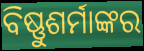
ବିଷ୍ଣୁଶର୍ମାଙ୍କର